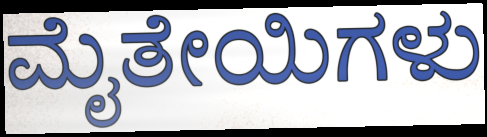
ಮೈತೇಯಿಗಳು